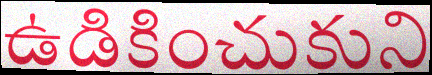
ఉడికించుకుని